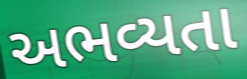
અભવ્યતા